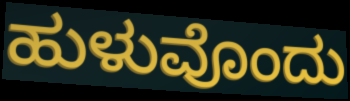
ಹುಳುವೊಂದು